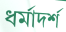
ধর্মাদর্শ